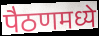
पैठणमध्ये